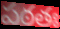
పఠతః